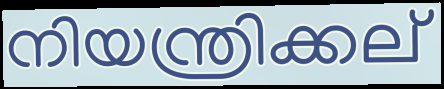
നിയന്ത്രിക്കല്